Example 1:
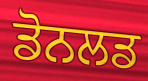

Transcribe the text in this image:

ਡੋਨਲਡ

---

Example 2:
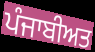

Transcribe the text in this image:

ਪੰਜਾਬੀਅਤ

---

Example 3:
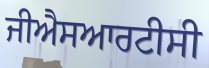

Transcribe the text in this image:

ਜੀਐਸਆਰਟੀਸੀ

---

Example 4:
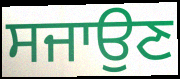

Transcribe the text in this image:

ਸਜਾਉਣ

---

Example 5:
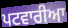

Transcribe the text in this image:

ਪਟਵਾਰੀਆ